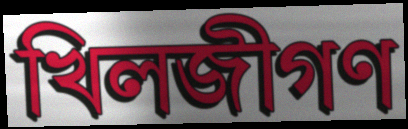
খিলজীগণ